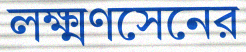
লক্ষ্মণসেনের